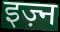
इज़्न